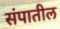
संपातील